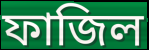
ফাজিল